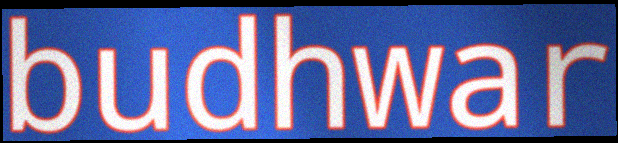
budhwar